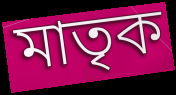
মাতৃক